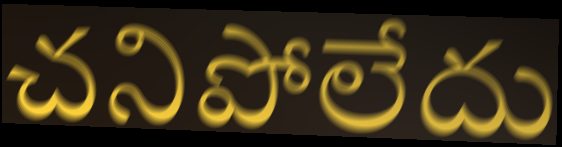
చనిపోలేదు